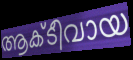
ആക്ടീവായ